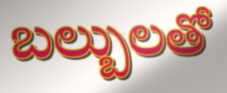
బల్బులతో